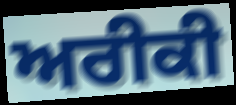
ਅਰੀਕੀ